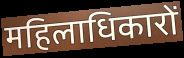
महिलाधिकारों